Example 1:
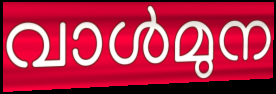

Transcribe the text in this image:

വാൾമുന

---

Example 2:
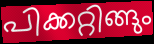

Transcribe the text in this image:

പിക്കറ്റിങ്ങും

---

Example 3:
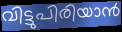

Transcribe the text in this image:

വിട്ടുപിരിയാൻ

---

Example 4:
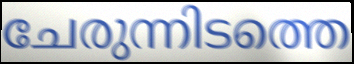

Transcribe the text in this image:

ചേരുന്നിടത്തെ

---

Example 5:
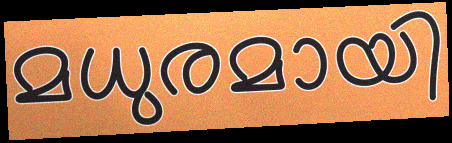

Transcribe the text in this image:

മധുരമായി